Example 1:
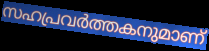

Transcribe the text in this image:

സഹപ്രവർത്തകനുമാണ്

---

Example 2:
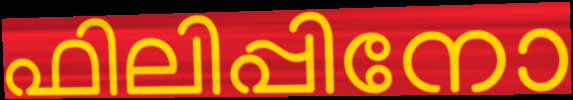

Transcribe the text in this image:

ഫിലിപ്പിനോ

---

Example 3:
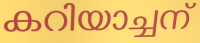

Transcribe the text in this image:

കറിയാച്ചന്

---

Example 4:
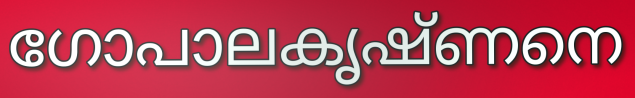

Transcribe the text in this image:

ഗോപാലകൃഷ്ണനെ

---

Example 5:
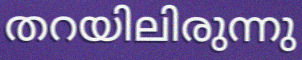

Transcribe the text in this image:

തറയിലിരുന്നു